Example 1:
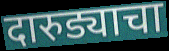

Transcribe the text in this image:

दारुड्याचा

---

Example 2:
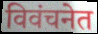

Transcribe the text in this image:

विवंचनेत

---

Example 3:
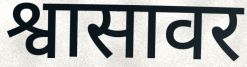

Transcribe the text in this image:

श्वासावर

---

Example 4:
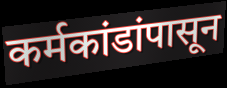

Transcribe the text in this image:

कर्मकांडांपासून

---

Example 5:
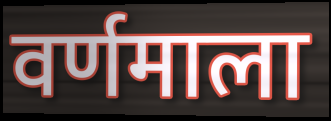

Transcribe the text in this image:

वर्णमाला